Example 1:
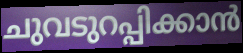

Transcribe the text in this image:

ചുവടുറപ്പിക്കാൻ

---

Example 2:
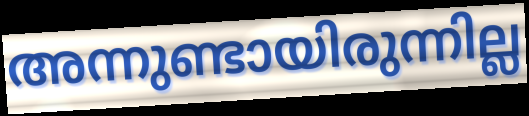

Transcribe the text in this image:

അന്നുണ്ടായിരുന്നില്ല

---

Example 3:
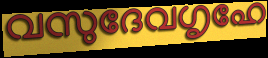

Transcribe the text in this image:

വസുദേവഗൃഹേ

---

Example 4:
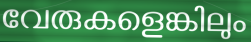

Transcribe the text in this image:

വേരുകളെങ്കിലും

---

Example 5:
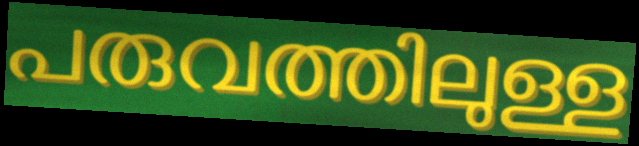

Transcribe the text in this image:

പരുവത്തിലുള്ള